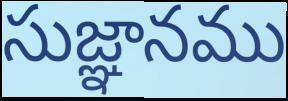
సుజ్ఞానము